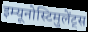
इम्यूनोस्टिमुलेंट्स